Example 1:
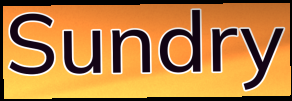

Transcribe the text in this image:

Sundry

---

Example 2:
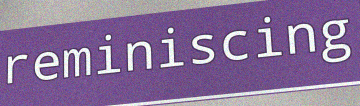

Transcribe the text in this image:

reminiscing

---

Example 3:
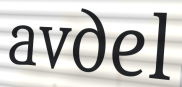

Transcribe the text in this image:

avdel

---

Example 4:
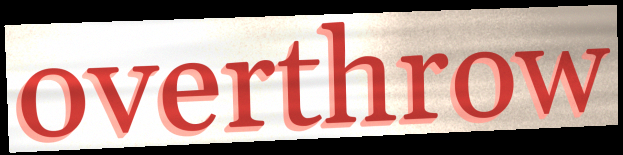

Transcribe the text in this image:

overthrow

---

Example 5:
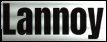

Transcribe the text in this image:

Lannoy